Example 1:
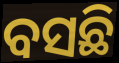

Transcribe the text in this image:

ବସଛି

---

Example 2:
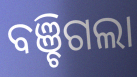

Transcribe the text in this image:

ବଞ୍ଚିଗଲା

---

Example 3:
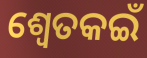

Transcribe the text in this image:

ଶ୍ୱେତକଇଁ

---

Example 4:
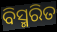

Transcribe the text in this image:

ବିସ୍ମରିତ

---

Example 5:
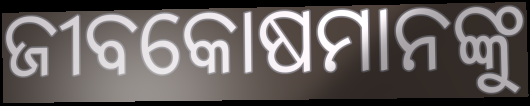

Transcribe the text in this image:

ଜୀବକୋଷମାନଙ୍କୁ